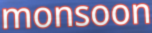
monsoon